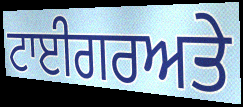
ਟਾਈਗਰਅਤੇ